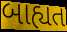
બાહ્યત